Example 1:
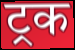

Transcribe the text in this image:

ट्रक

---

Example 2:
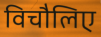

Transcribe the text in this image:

विचौलिए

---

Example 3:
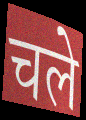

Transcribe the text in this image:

चले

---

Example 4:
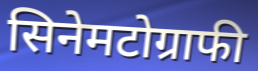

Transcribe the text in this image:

सिनेमटोग्राफी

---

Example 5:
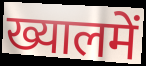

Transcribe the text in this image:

ख्यालमें